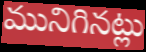
మునిగినట్లు